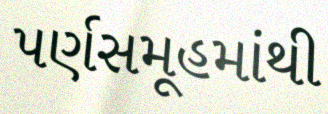
પર્ણસમૂહમાંથી